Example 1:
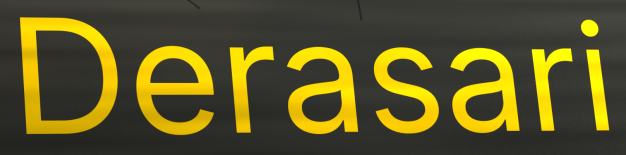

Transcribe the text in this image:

Derasari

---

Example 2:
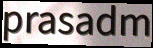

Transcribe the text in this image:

prasadm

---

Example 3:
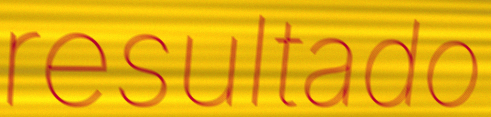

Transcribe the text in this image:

resultado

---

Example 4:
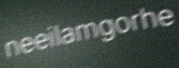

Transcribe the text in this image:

neeilamgorhe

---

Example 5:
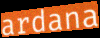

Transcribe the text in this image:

ardana